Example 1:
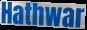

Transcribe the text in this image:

Hathwar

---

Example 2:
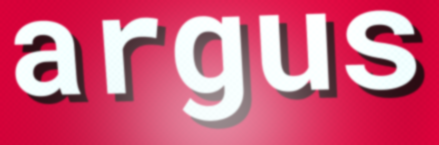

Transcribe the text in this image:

argus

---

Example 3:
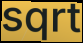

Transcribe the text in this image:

sqrt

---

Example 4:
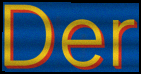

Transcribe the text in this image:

Der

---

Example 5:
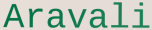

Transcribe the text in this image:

Aravali